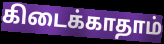
கிடைக்காதாம்